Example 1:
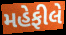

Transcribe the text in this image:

મહેફીલે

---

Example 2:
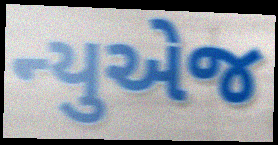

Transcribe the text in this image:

ન્યુએજ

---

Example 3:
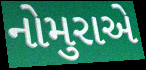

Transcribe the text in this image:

નોમુરાએ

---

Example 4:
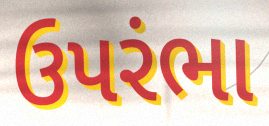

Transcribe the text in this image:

ઉપરંભા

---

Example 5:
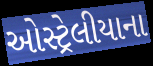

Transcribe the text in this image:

ઓસ્ટ્રેલીયાના